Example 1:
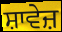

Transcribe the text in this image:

ਸ਼ਾਵੇਜ਼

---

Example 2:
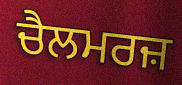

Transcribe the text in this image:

ਚੈਲਮਰਜ਼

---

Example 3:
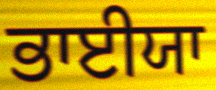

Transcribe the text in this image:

ਭਾਈਯਾ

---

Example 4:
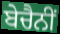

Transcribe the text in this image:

ਬੇਚੈਨੀਂ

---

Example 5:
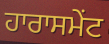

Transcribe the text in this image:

ਹਾਰਾਸਮੇਂਟ